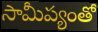
సామీప్యంతో